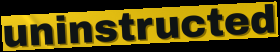
uninstructed